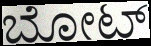
ಬೋಟ್